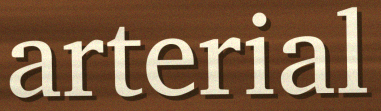
arterial